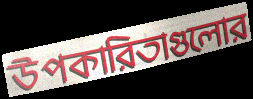
উপকারিতাগুলোর